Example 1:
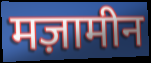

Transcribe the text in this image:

मज़ामीन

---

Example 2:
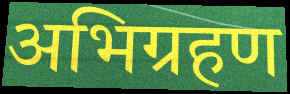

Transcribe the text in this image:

अभिग्रहण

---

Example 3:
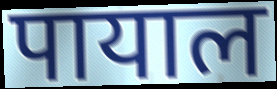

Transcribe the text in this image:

पायाल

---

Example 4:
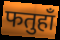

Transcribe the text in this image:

फतुहाँ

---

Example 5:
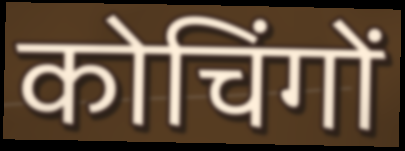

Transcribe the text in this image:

कोचिंगों